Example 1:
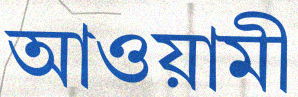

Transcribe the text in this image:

আওয়ামী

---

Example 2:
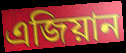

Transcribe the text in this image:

এজিয়ান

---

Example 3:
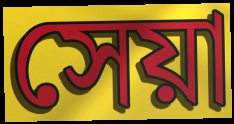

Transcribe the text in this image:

সেয়া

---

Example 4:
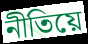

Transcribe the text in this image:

নীতিয়ে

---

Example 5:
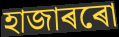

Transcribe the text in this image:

হাজাৰৰো